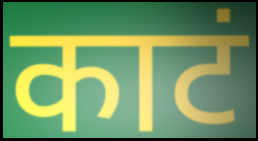
काटं